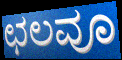
ಛಲವೂ